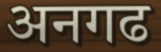
अनगढ